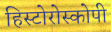
हिस्टोरोस्कोपी